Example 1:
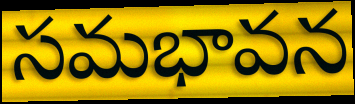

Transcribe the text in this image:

సమభావన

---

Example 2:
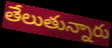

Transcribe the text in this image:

తేలుతున్నారు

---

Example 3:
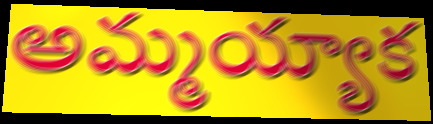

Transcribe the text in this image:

అమ్మయ్యాక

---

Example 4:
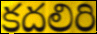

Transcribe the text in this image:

కదలిరి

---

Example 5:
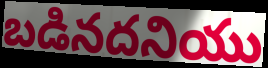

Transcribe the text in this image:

బడినదనియు